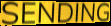
SENDING